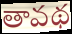
తావథ